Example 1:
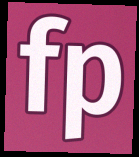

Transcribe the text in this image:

fp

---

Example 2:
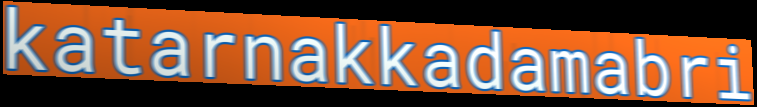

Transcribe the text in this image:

katarnakkadamabri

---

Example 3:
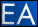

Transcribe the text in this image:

EA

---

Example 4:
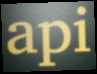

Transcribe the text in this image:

api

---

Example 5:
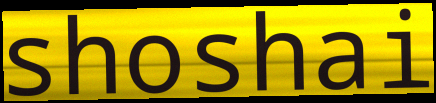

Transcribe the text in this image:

shoshai